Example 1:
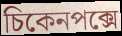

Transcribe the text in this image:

চিকেনপক্সে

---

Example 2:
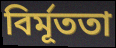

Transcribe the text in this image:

বির্মূততা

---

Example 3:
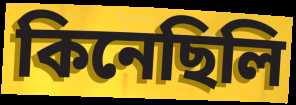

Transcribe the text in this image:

কিনেছিলি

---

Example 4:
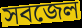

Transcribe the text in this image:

সবজেল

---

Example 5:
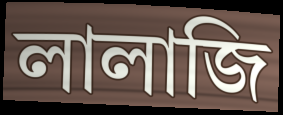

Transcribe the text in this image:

লালাজি